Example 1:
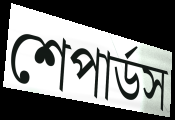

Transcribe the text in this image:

শেপার্ডস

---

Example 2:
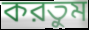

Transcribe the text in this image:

করতুম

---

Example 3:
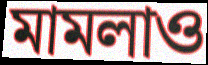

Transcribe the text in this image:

মামলাও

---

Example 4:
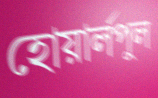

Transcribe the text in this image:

হোয়ার্লপুল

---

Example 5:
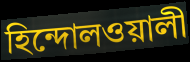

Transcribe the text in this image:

হিন্দোলওয়ালী